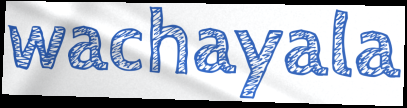
wachayala